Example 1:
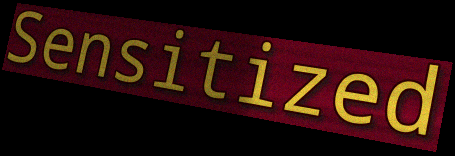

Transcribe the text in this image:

Sensitized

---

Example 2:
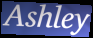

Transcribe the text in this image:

Ashley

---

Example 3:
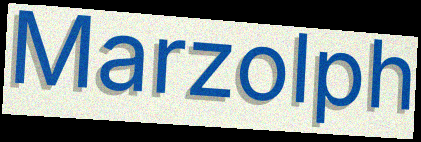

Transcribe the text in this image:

Marzolph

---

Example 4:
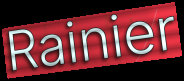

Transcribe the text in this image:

Rainier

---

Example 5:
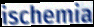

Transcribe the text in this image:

ischemia